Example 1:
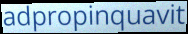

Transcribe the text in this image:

adpropinquavit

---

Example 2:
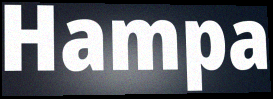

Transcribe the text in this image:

Hampa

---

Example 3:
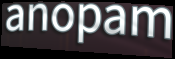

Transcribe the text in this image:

anopam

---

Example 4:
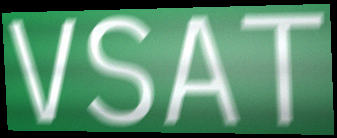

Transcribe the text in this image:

VSAT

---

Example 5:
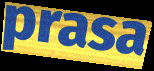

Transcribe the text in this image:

prasa